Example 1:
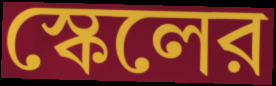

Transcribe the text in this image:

স্কেলের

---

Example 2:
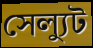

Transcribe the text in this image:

সেল্যুট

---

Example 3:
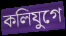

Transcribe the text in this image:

কলিযুগে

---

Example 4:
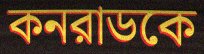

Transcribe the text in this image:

কনরাডকে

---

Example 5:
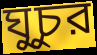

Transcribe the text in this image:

ঘুচুর